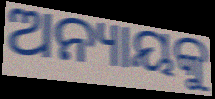
ଅନ୍ୟାୟକୁ